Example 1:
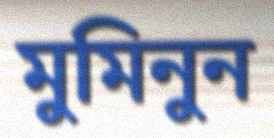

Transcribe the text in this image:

মুমিনুন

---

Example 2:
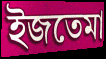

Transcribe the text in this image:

ইজতেমা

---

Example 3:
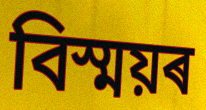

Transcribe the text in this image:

বিস্ময়ৰ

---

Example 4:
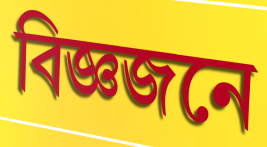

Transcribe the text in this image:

বিজ্ঞজনে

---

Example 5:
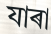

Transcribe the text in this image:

যাৰা